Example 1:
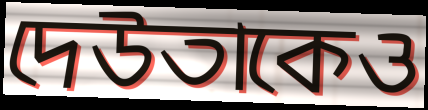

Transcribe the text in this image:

দেউতাকেও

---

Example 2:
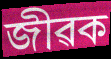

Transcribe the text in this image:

জীৱক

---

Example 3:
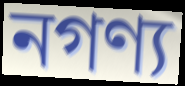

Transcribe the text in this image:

নগণ্য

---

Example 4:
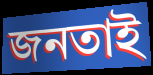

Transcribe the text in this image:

জনতাই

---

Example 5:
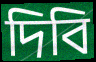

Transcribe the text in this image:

দিবি